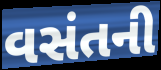
વસંતની